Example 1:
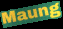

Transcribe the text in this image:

Maung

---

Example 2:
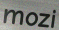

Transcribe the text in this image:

mozi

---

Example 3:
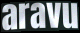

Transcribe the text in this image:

aravu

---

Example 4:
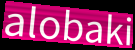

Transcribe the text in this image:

alobaki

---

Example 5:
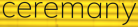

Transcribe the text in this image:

ceremany